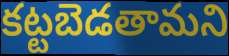
కట్టబెడతామని